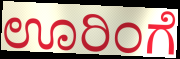
ಊರಿಂಗೆ